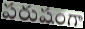
పరుషంగా